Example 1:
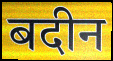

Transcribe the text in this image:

बदीन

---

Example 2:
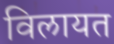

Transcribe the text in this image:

विलायत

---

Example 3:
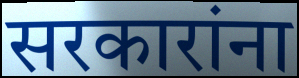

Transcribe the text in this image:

सरकारांना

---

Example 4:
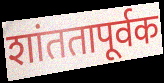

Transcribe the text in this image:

शांततापूर्वक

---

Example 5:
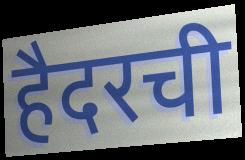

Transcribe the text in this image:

हैदरची